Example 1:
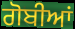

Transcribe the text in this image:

ਗੋਬੀਆਂ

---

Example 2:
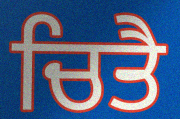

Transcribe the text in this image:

ਚਿਤੈ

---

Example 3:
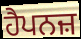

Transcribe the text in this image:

ਹੈਪਨਜ਼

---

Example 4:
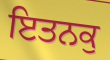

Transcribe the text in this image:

ਇਤਨਕੁ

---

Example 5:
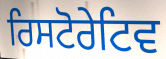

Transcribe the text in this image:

ਰਿਸਟੋਰੇਟਿਵ